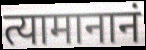
त्यामानानं